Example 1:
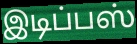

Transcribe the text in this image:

இடிப்பஸ்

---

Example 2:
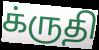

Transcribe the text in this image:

க்ருதி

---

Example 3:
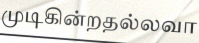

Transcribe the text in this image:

முடிகின்றதல்லவா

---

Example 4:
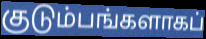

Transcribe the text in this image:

குடும்பங்களாகப்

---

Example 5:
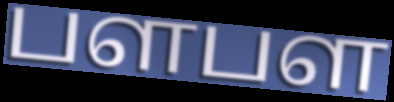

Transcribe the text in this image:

பளபள